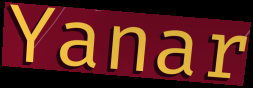
Yanar